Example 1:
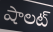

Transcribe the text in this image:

షాలట్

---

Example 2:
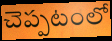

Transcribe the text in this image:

చెప్పటంలో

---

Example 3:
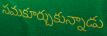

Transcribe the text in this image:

సమకూర్చుకున్నాడు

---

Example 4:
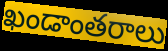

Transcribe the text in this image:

ఖండాంతరాలు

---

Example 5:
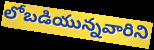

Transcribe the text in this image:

లోబడియున్నవారిని